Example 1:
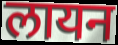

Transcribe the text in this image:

लायन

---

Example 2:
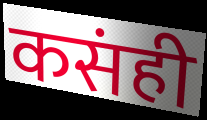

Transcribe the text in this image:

कसंही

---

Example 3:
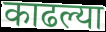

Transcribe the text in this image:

काढल्या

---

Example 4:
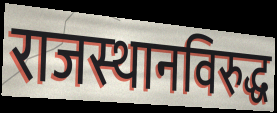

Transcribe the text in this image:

राजस्थानविरुद्ध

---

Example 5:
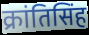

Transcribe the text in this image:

क्रांतिसिंह